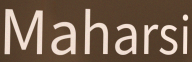
Maharsi